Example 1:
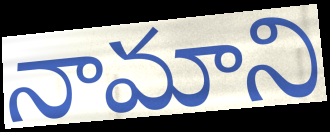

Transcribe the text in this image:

నామాని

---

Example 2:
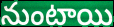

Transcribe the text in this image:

నుంటాయి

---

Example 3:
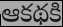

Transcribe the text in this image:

ఆకథకి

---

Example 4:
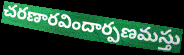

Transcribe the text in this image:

చరణారవిందార్పణమస్తు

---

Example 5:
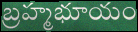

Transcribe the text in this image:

బ్రహ్మభూయం